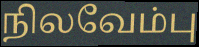
நிலவேம்பு